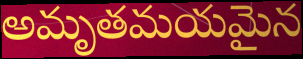
అమృతమయమైన